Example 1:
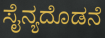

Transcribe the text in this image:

ಸೈನ್ಯದೊಡನೆ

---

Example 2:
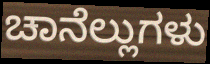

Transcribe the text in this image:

ಚಾನೆಲ್ಲುಗಳು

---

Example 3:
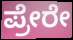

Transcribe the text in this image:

ಪ್ರೇರೇ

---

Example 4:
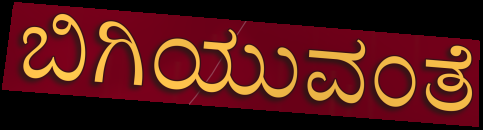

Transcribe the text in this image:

ಬಿಗಿಯುವಂತೆ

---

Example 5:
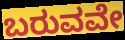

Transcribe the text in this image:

ಬರುವವೇ